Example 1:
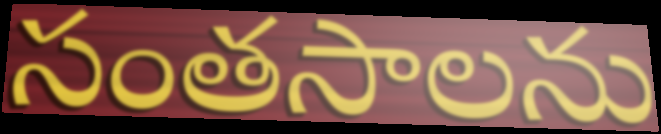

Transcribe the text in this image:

సంతసాలను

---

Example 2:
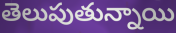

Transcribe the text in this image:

తెలుపుతున్నాయి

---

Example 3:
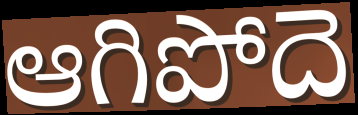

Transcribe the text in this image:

ఆగిపోదె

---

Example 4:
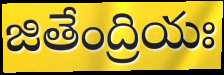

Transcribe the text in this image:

జితేంద్రియః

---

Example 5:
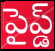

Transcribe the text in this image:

పైప్డ్